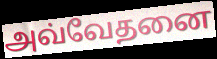
அவ்வேதனை